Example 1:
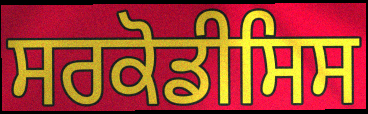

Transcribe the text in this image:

ਸਰਕੋਡੀਸਿਸ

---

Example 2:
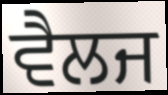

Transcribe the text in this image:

ਵੈਲਜ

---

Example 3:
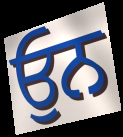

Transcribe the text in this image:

ਓੁਨ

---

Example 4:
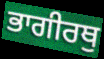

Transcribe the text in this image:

ਭਾਗੀਰਥੁ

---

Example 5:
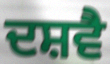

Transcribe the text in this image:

ਦਸ਼ਵੈ